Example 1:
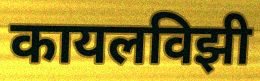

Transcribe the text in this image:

कायलविझी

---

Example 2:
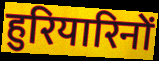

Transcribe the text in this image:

हुरियारिनों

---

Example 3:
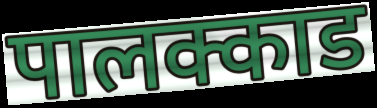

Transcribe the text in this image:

पालक्काड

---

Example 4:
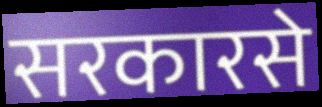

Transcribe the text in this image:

सरकारसे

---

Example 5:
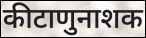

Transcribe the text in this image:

कीटाणुनाशक